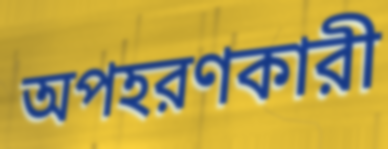
অপহরণকারী